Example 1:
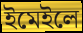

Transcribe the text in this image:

ইমেইলে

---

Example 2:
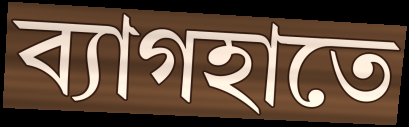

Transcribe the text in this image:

ব্যাগহাতে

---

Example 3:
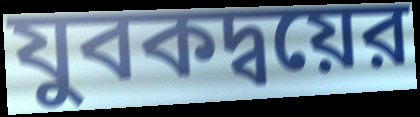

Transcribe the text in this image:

যুবকদ্বয়ের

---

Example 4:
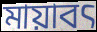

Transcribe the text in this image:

মায়াবৎ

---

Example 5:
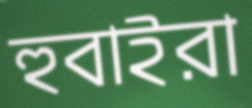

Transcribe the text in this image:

হুবাইরা